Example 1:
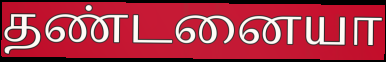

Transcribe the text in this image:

தண்டனையா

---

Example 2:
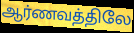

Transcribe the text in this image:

ஆர்ணவத்திலே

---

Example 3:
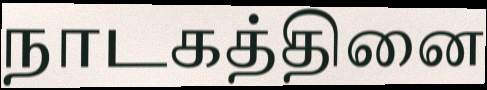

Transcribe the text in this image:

நாடகத்தினை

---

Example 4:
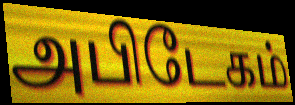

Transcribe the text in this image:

அபிடேகம்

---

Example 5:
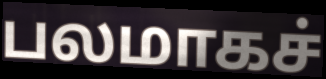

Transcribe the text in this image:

பலமாகச்